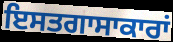
ਇਸਤਗਾਸਾਕਾਰਾਂ